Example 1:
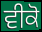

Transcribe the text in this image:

ਵੀਕੋ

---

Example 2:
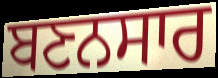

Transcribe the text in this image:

ਬਣਨਸਾਰ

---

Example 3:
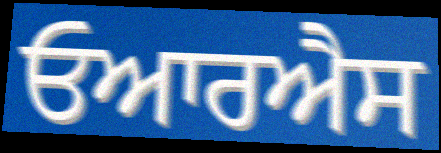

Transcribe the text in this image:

ਓਆਰਐਸ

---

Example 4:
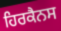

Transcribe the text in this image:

ਹਿਰਕੈਨਸ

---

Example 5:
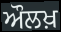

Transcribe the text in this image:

ਔਲਖ਼